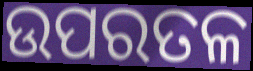
ଉପରତଳ